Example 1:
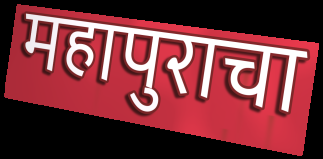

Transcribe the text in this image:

महापुराचा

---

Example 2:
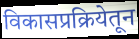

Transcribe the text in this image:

विकासप्रक्रियेतून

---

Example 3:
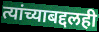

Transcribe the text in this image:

त्यांच्याबद्दलही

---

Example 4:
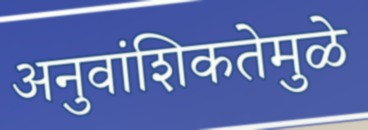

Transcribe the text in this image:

अनुवांशिकतेमुळे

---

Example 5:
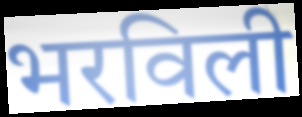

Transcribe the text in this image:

भरविली